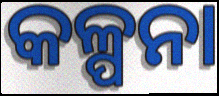
କଳ୍ପନା